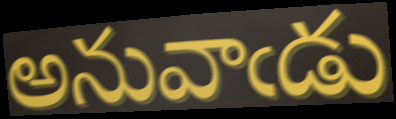
అనువాఁడు